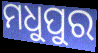
ମଧୁପୁର